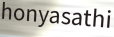
honyasathi